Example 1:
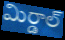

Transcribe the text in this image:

మిర్డాల్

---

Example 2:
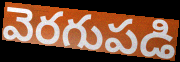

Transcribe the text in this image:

వెరగుపడి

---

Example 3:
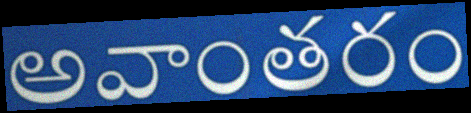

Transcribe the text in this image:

అవాంతరం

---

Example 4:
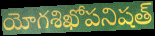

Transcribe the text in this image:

యోగశిఖోపనిషత్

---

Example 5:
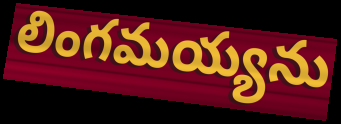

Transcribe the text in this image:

లింగమయ్యను